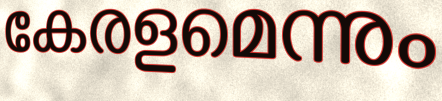
കേരളമെന്നും